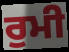
ਰੁਮੀ